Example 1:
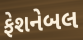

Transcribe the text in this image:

ફેશનેબલ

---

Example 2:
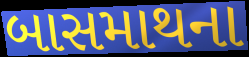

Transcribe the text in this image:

બાસમાથના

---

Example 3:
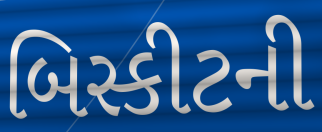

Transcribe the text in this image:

બિસ્કીટની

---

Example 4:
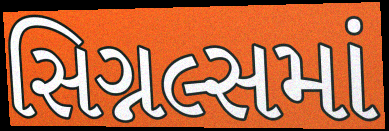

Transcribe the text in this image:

સિગ્નલ્સમાં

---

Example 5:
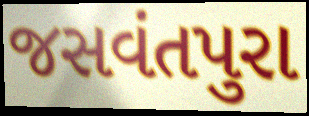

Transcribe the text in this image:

જસવંતપુરા